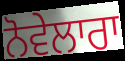
ਨੋਵੇਲਾਰਾ